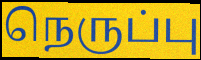
நெருப்பு